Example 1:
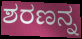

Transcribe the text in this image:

ಶರಣನ್ನ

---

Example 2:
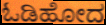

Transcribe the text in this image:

ಓಡಿಹೋದ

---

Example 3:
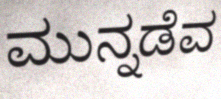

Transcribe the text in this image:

ಮುನ್ನಡೆವ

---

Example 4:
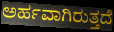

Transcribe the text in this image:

ಅರ್ಹವಾಗಿರುತ್ತದೆ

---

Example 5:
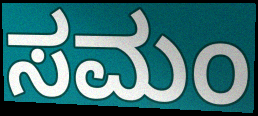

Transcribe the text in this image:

ಸಮಂ